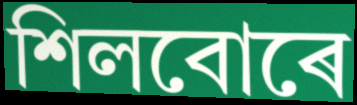
শিলবোৰে